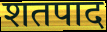
शतपाद